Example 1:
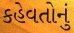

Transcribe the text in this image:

કહેવતોનું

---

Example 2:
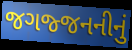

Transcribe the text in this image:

જગજ્જનનીનું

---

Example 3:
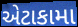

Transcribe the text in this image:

એટાકામા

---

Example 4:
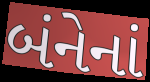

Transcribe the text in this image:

બંનેનાં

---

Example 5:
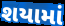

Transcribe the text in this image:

શયામાં